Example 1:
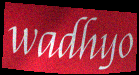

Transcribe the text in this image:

wadhyo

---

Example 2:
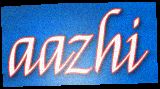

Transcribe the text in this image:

aazhi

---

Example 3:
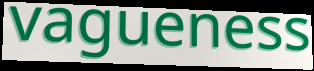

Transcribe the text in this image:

vagueness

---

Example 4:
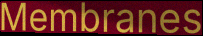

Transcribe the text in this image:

Membranes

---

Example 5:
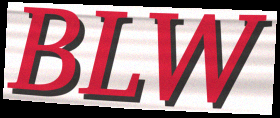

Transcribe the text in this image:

BLW